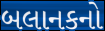
બલાનકનો